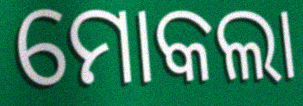
ମୋକଲା